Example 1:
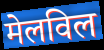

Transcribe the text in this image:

मेलविल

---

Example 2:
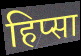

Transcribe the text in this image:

हिप्सा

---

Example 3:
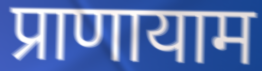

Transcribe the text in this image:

प्राणायाम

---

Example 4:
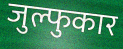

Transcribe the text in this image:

जुल्फुकार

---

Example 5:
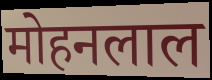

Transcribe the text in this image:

मोहनलाल